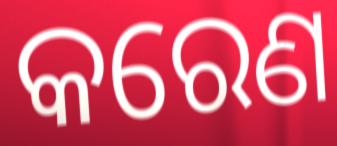
କରେଣ